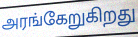
அரங்கேறுகிறது